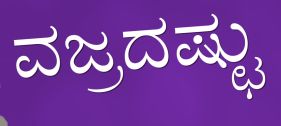
ವಜ್ರದಷ್ಟು